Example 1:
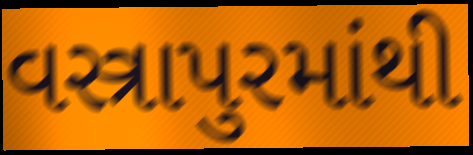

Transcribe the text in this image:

વસ્ત્રાપુરમાંથી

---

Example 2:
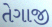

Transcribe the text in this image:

તેગાજી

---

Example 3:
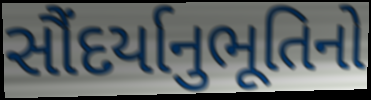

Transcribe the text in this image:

સૌંદર્યાનુભૂતિનો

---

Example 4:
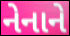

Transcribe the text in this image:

નેનાને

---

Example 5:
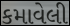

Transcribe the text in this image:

કમાવેલી